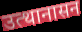
उत्थानासन